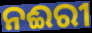
ନଈରୀ